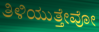
ತಿಳಿಯುತ್ತೇವೋ